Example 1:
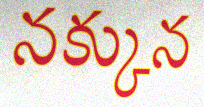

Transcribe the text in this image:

నక్కున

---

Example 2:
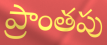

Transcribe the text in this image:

ప్రాంతపు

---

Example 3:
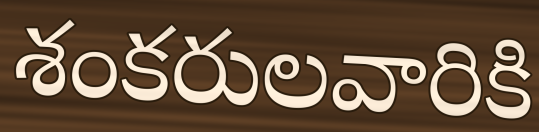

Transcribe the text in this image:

శంకరులవారికి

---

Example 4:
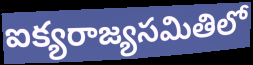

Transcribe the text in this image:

ఐక్యరాజ్యసమితిలో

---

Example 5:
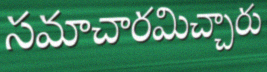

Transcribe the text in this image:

సమాచారమిచ్చారు